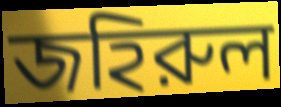
জহিরুল